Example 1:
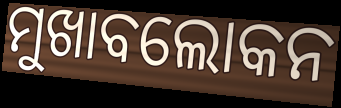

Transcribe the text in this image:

ମୁଖାବଲୋକନ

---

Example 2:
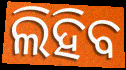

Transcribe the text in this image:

ଲିହିବ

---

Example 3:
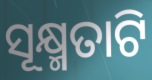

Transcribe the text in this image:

ସୂକ୍ଷ୍ମତାଟି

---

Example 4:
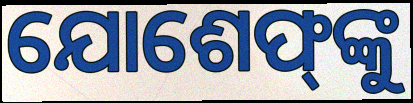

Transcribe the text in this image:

ଯୋଶେଫ୍‌ଙ୍କୁ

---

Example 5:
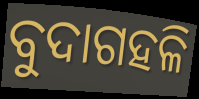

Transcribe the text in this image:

ବୁଦାଗହଳି